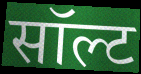
सॉल्ट